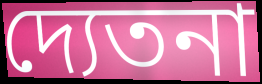
দ্যেতনা